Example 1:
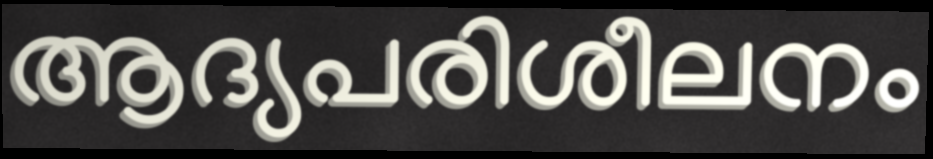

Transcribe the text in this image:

ആദ്യപരിശീലനം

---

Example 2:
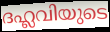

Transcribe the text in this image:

ദഹ്ലവിയുടെ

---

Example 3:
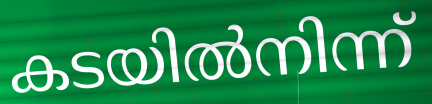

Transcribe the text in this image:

കടയിൽനിന്ന്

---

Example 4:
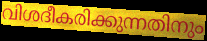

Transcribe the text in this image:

വിശദീകരിക്കുന്നതിനും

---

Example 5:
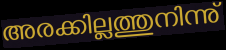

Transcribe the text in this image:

അരക്കില്ലത്തുനിന്നു്